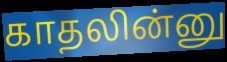
காதலின்னு